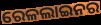
ରେଳଲାଇନର